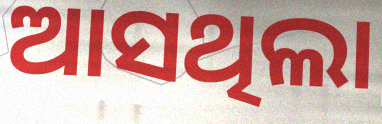
ଆସଥିଲା